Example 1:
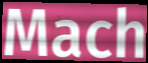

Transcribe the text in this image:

Mach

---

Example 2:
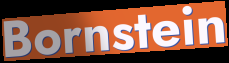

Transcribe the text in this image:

Bornstein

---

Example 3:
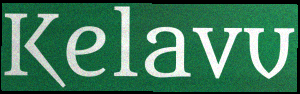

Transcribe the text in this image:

Kelavu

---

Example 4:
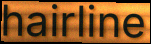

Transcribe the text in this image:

hairline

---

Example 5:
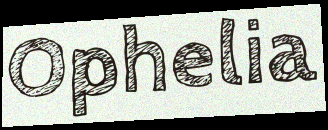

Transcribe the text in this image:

Ophelia